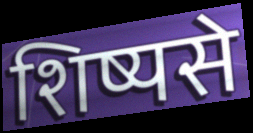
शिष्यसे